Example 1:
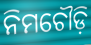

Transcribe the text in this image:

ନିମଚୌଡ଼ି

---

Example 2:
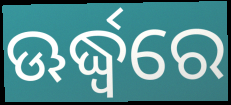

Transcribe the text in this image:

ଊର୍ଦ୍ଧ୍ୱରେ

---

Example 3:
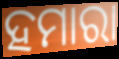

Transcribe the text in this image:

ହମାରା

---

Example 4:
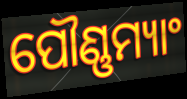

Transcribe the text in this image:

ପୌଣ୍ଣମ୍ୟାଂ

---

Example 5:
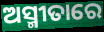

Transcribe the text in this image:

ଅସ୍ମୀତାରେ